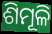
ଶିମୂଳି